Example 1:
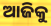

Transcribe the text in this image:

ଆଜିକୁ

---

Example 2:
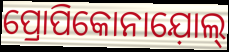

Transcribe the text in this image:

ପ୍ରୋପିକୋନାଯ଼ୋଲ୍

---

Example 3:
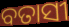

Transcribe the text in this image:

ବତାସୀ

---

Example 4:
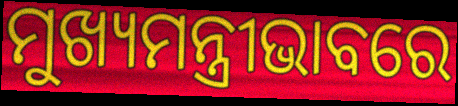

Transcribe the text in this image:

ମୁଖ୍ୟମନ୍ତ୍ରୀଭାବରେ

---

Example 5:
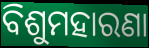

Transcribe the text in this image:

ବିଶୁମହାରଣା